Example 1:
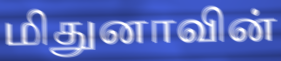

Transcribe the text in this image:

மிதுனாவின்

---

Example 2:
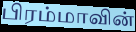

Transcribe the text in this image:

பிரம்மாவின்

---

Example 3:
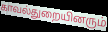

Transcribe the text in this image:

காவல்துறையினரும்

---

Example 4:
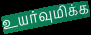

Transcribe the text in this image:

உயர்வுமிக்க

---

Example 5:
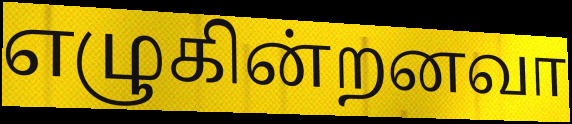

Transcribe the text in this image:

எழுகின்றனவா